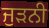
ਜੁੜਨੀ